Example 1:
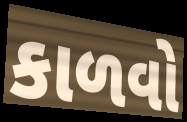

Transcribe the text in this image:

કાળવો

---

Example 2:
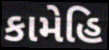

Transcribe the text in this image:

કામેહિ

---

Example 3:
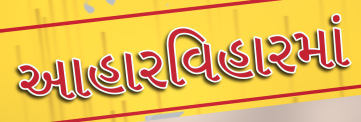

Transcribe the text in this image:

આહારવિહારમાં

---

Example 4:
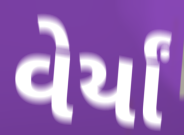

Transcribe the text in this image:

વેર્યાં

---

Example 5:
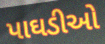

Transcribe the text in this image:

પાઘડીઓ